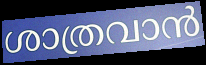
ശാത്രവാൻ